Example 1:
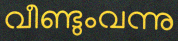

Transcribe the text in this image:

വീണ്ടുംവന്നു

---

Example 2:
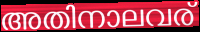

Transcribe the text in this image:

അതിനാലവര്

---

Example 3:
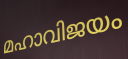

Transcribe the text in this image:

മഹാവിജയം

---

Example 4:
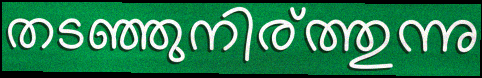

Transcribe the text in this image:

തടഞ്ഞുനിര്ത്തുന്നു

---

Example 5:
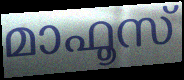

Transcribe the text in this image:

മാഫൂസ്